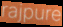
rajpure